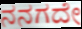
ನನಗದೇ